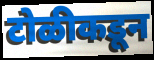
टोळीकडून